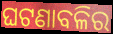
ଘଟଣାବଳିର